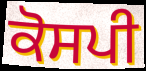
ਕੋਸਪੀ